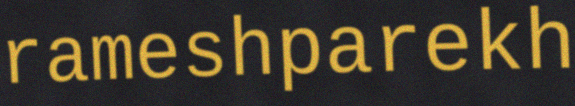
rameshparekh